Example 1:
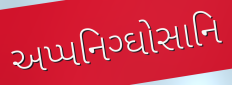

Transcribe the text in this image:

અપ્પનિગ્ઘોસાનિ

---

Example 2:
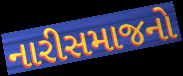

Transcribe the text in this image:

નારીસમાજનો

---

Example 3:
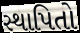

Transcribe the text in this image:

સ્થાપિતો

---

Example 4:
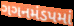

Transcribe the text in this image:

ગગનમંડપમાં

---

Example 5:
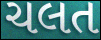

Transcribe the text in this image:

ચલત